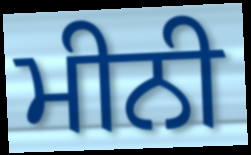
ਮੀਨੀ